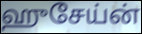
ஹுசேய்ன்